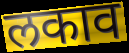
लकाव